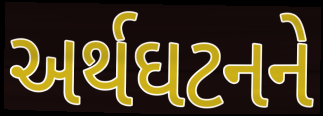
અર્થઘટનને